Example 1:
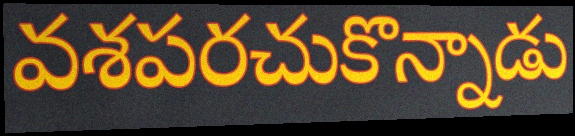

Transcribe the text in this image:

వశపరచుకొన్నాడు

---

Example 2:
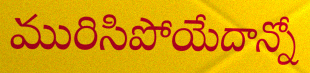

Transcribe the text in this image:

మురిసిపోయేదాన్నో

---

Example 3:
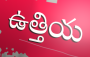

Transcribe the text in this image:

ఉత్తియ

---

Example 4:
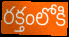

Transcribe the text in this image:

రక్తంలోకి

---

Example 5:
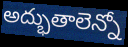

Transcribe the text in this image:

అద్భుతాలెన్నో